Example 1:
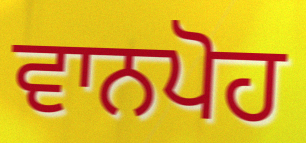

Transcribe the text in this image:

ਵਾਨਪੋਹ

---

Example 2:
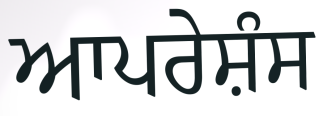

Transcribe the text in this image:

ਆਪਰੇਸ਼ੰਸ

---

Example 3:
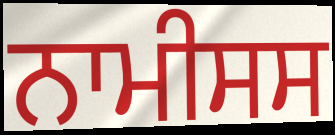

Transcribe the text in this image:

ਨਾਮੀਸਸ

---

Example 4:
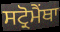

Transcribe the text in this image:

ਸਟ੍ਰੋਮੈਂਥਾ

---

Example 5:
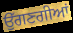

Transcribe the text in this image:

ਉੱਗਣਗੀਆਂ